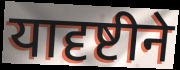
यादृष्टीने